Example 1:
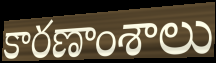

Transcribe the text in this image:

కారణాంశాలు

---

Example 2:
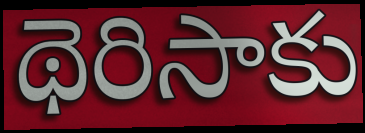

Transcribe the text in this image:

థెరిసాకు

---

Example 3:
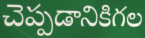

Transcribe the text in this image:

చెప్పడానికిగల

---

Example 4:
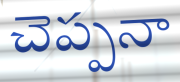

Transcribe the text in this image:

చెప్పనా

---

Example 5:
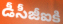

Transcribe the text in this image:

డీసీజీఐకి